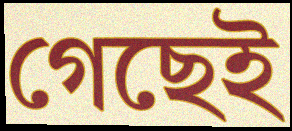
গেছেই